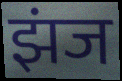
झंज